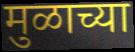
मुळाच्या